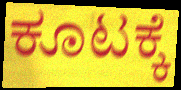
ಕೂಟಕ್ಕೆ